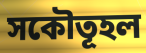
সকৌতূহল